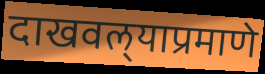
दाखवल्याप्रमाणे